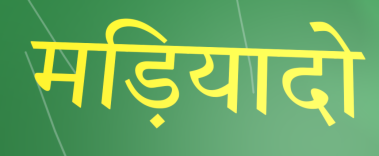
मड़ियादो